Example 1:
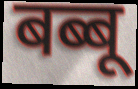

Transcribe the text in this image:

बब्बू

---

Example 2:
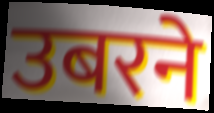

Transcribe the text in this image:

उबरने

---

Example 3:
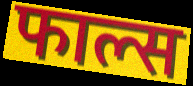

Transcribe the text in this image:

फाल्स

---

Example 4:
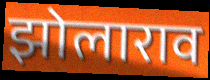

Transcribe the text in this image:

झोलाराव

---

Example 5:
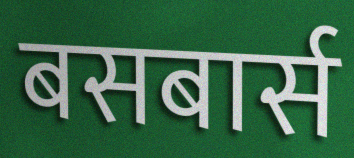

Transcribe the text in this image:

बसबार्स